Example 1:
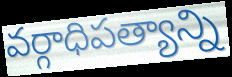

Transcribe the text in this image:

వర్గాధిపత్యాన్ని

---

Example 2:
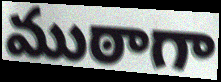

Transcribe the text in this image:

ముఠాగా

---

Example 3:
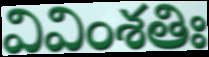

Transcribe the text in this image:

వివింశతిః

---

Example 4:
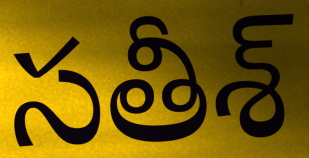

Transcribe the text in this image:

సతీశ్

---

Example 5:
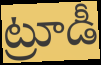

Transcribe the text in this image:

ట్రూడీ